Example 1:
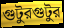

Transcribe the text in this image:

গুটুরগুটুর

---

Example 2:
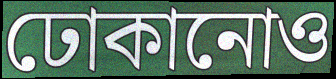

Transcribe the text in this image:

ঢোকানোও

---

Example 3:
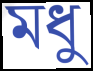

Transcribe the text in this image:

মধু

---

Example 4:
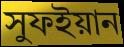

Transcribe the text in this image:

সুফইয়ান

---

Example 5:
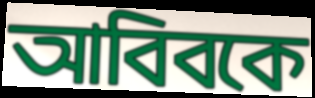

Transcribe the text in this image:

আবিবকে